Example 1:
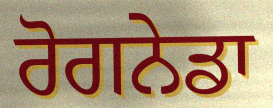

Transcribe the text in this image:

ਰੋਗਨੇਡਾ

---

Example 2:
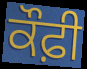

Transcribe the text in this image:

ਕੌਫ਼ੀ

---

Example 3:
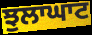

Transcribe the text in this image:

ਝੁਲਾਘਾਟ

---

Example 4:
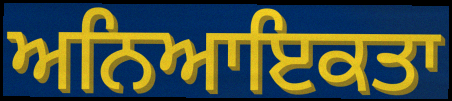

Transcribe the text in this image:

ਅਨਿਆਇਕਤਾ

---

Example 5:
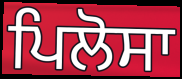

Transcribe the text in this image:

ਪਿਲੋਸਾ